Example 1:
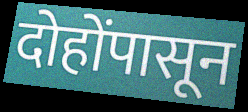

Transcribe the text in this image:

दोहोंपासून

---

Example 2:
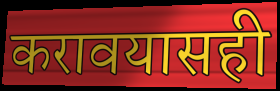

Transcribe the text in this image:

करावयासही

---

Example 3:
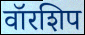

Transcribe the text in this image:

वॉरशिप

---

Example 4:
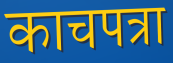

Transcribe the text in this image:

काचपत्रा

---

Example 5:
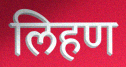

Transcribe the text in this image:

लिहण